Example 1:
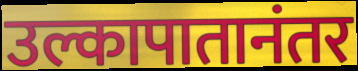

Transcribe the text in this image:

उल्कापातानंतर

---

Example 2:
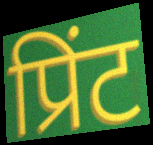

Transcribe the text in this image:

प्रिंट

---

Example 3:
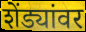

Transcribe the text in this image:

शेंड्यांवर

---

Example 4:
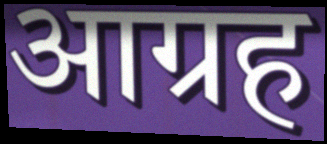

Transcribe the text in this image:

आग्रह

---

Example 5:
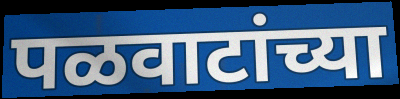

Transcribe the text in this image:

पळवाटांच्या